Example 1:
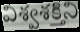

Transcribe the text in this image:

విశ్వశక్తిని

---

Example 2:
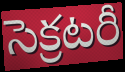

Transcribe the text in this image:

సెక్రటరీ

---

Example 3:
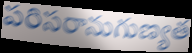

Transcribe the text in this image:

పరిసరానుగుణ్యత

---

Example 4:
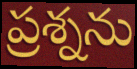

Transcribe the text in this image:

ప్రశ్నను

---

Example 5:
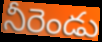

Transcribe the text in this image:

నీరెండు